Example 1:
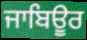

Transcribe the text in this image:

ਜਾਬਿਊਰ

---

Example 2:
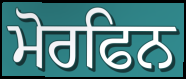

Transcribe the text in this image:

ਮੋਰਫਿਨ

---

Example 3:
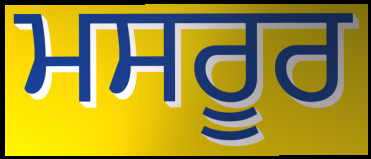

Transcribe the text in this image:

ਮਸਰੂਰ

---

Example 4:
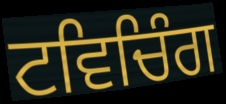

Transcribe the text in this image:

ਟਵਿਚਿੰਗ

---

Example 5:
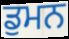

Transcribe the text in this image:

ਡੁਮਨ